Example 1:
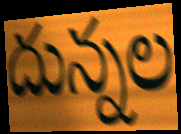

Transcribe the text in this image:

దున్నల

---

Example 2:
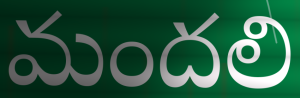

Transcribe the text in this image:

మందలి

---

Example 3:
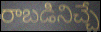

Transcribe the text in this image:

రాబడినిచ్చే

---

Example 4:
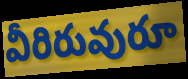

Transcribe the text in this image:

వీరిరువురూ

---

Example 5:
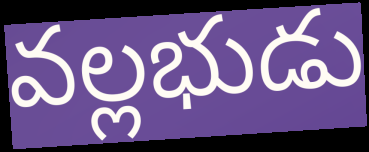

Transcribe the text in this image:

వల్లభుడు